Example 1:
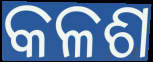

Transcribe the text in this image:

କଳଶ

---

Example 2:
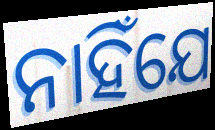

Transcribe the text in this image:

ନାହିଁଯେ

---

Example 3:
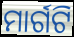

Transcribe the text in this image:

ମାର୍ଗଟି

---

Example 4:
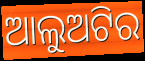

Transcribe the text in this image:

ଆଲୁଅଟିର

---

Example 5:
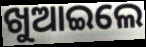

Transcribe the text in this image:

ଖୁଆଇଲେ